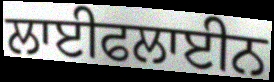
ਲਾਈਫਲਾਈਨ